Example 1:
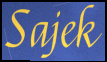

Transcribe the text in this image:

Sajek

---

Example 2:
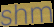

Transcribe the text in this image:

shm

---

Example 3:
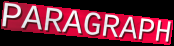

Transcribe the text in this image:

PARAGRAPH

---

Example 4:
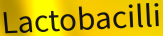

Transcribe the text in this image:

Lactobacilli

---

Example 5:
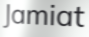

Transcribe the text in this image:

Jamiat